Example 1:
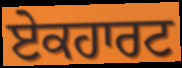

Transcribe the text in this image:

ਏਕਹਾਰਟ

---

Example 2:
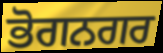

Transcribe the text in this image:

ਭੋਗਨਗਰ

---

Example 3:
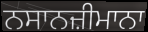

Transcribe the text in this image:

ਨਸਾਨਜ਼ੀਮਾਨਾ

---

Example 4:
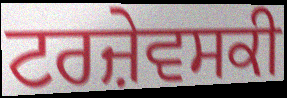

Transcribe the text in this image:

ਟਰਜ਼ੇਵਸਕੀ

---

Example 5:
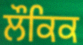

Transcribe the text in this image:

ਲੌਕਿਕ